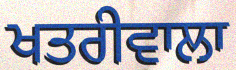
ਖਤਰੀਵਾਲਾ